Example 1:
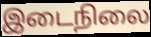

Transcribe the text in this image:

இடைநிலை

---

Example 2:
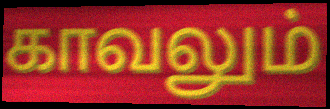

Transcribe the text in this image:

காவலும்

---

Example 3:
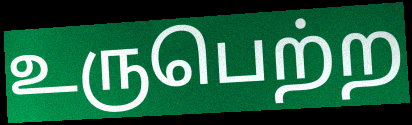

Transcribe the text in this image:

உருபெற்ற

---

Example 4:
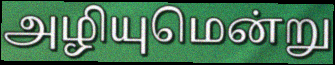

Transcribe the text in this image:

அழியுமென்று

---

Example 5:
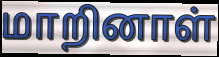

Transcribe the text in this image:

மாறினாள்